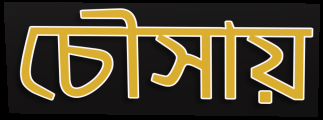
চৌসায়